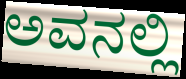
ಅವನಲ್ಲಿ